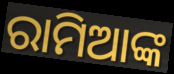
ରାମିଆଙ୍କ